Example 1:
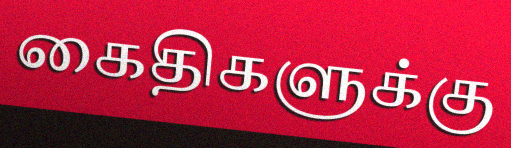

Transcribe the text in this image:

கைதிகளுக்கு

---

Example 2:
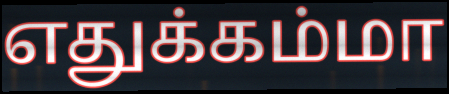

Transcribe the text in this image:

எதுக்கம்மா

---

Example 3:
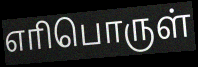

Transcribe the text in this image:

எரிபொருள்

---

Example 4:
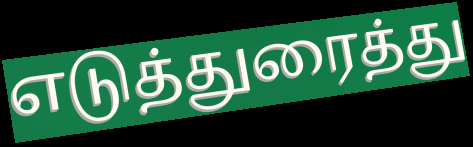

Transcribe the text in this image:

எடுத்துரைத்து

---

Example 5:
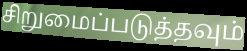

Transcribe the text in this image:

சிறுமைப்படுத்தவும்